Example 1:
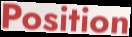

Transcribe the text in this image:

Position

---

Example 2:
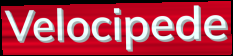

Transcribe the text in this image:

Velocipede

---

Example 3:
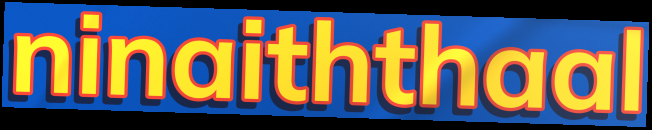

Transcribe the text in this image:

ninaiththaal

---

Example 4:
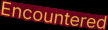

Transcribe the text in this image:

Encountered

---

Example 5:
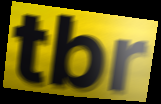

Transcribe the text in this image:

tbr